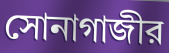
সোনাগাজীর